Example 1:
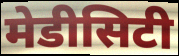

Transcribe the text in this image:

मेडीसिटी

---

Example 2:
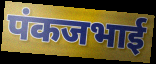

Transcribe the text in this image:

पंकजभाई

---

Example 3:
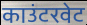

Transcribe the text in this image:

काउंटरवेट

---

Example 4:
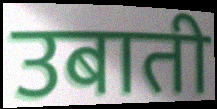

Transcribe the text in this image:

उबाती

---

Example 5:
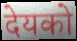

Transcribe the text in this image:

देयको